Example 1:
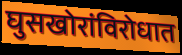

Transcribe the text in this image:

घुसखोरांविरोधात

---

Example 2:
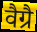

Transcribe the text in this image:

वैग्रै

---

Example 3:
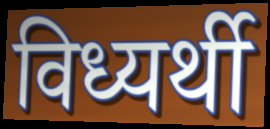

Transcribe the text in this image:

विध्यर्थी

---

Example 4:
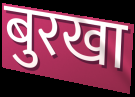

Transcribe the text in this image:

बुरखा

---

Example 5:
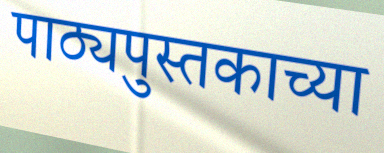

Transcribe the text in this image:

पाठ्यपुस्तकाच्या